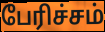
பேரிச்சம்